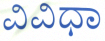
ವಿವಿಧಾ